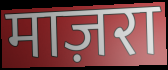
माज़रा